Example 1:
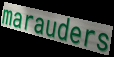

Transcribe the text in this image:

marauders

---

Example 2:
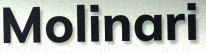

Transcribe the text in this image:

Molinari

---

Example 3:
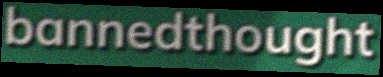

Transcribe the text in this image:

bannedthought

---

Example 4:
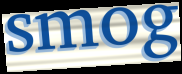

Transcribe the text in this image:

smog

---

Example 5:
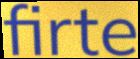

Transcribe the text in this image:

firte